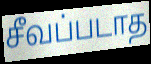
சீவப்படாத